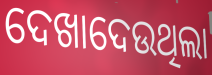
ଦେଖାଦେଉଥିଲା